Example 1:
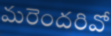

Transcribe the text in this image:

మరెందరివో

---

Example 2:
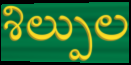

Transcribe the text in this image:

శిల్పుల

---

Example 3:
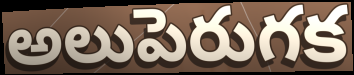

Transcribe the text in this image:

అలుపెరుగక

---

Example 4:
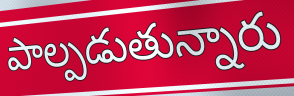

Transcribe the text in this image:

పాల్పడుతున్నారు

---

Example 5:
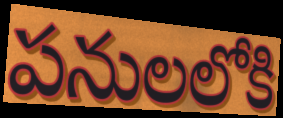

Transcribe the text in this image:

పనులలోకి